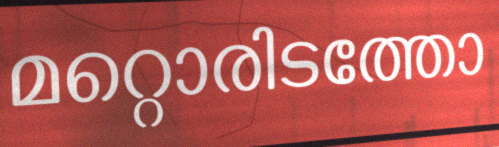
മറ്റൊരിടത്തോ